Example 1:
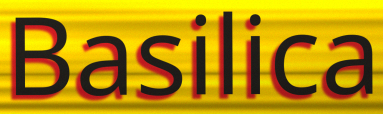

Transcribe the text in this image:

Basilica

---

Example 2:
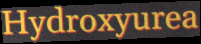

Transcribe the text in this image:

Hydroxyurea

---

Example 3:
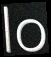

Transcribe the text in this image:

lo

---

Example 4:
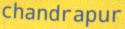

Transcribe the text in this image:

chandrapur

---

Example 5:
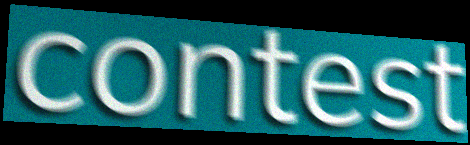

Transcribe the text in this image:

contest